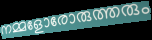
നമ്മളോരോരുത്തരും